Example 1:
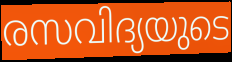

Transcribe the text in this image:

രസവിദ്യയുടെ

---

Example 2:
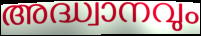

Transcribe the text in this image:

അദ്ധ്വാനവും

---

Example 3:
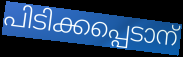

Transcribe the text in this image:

പിടിക്കപ്പെടാന്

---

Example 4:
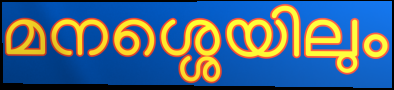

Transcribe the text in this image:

മനശ്ശെയിലും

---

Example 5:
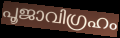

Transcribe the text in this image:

പൂജാവിഗ്രഹം